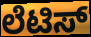
ಲೆಟಿಸ್